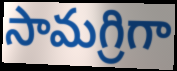
సామగ్రిగా